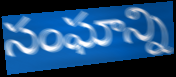
సంఘాన్ని